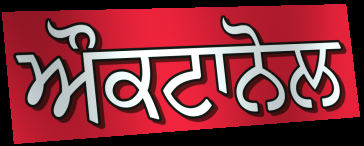
ਔਕਟਾਨੋਲ